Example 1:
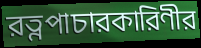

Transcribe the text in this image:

রত্নপাচারকারিণীর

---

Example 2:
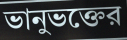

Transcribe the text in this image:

ভানুভক্তের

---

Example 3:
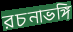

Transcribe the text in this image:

রচনাভঙ্গি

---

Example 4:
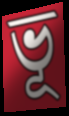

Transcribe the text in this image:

ভূ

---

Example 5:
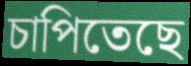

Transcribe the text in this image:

চাপিতেছে